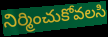
నిర్మించుకోవలసి